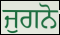
ਜੁਗਨੋ